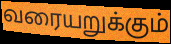
வரையறுக்கும்